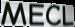
MECL